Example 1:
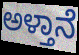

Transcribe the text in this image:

ಅಳ್ತಾನೆ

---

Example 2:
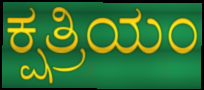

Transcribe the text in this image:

ಕ್ಷತ್ರಿಯಂ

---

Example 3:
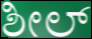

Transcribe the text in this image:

ಶೀಲ್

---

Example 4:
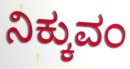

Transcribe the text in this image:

ನಿಕ್ಕುವಂ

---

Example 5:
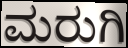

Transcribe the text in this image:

ಮರುಗಿ